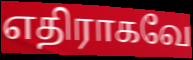
எதிராகவே